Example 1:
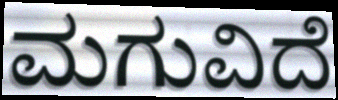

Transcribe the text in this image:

ಮಗುವಿದೆ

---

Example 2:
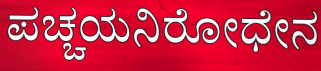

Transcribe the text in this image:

ಪಚ್ಚಯನಿರೋಧೇನ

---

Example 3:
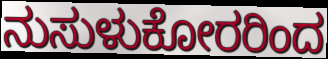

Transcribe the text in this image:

ನುಸುಳುಕೋರರಿಂದ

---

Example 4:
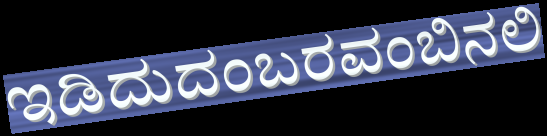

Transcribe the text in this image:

ಇಡಿದುದಂಬರವಂಬಿನಲಿ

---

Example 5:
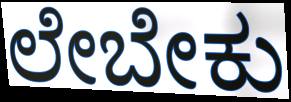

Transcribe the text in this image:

ಲೇಬೇಕು